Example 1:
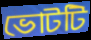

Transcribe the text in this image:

ভোটটি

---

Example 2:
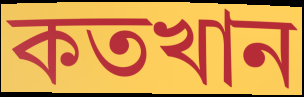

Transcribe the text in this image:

কতখান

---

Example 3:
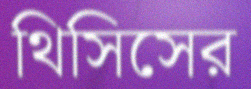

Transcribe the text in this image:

থিসিসের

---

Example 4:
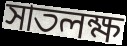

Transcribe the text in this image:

সাতলক্ষ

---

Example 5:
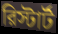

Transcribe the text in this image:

রিস্টার্ট